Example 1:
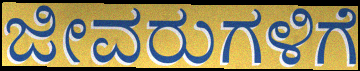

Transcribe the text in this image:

ಜೀವರುಗಳಿಗೆ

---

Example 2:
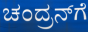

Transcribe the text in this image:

ಚಂದ್ರನ್‌ಗೆ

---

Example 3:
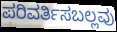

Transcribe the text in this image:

ಪರಿವರ್ತಿಸಬಲ್ಲವು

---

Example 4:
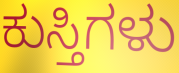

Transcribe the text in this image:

ಕುಸ್ತಿಗಳು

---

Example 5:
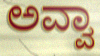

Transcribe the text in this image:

ಅವ್ವಾ